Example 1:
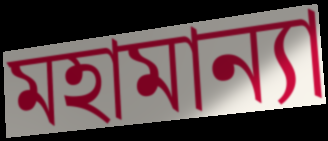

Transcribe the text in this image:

মহামান্যা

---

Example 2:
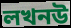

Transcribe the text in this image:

লখনউ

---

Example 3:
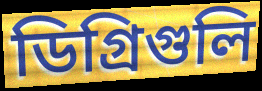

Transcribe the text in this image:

ডিগ্রিগুলি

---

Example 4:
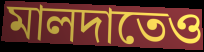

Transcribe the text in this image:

মালদাতেও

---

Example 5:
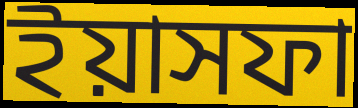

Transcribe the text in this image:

ইয়াসফা